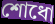
শোধো